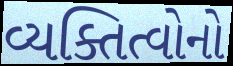
વ્યક્તિત્વોનો